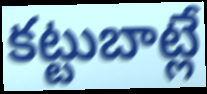
కట్టుబాట్లే